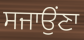
ਸਜਾਉਂਣਾ